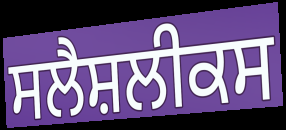
ਸਲੈਸ਼ਲੀਕਸ